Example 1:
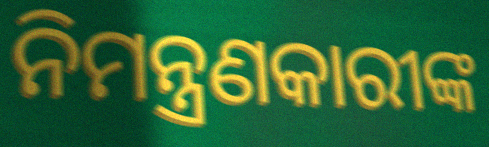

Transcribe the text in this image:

ନିମନ୍ତ୍ରଣକାରୀଙ୍କ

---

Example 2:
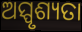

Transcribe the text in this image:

ଅସ୍ପୃଶ୍ୟତା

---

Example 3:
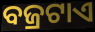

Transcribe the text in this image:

ବଜ୍ରଟାଏ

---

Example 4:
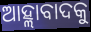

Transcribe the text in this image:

ଆହ୍ଲାବାଦକୁ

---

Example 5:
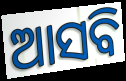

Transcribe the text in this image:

ଆସବି